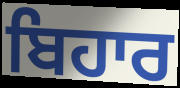
ਬਿਹਾਰ